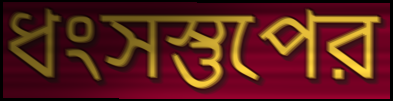
ধংসস্তুপের